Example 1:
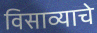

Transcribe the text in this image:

विसाव्याचे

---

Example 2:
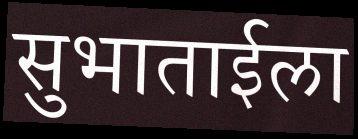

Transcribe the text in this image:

सुभाताईला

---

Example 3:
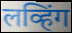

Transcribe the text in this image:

लव्हिंग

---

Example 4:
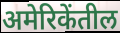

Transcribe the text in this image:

अमेरिकेंतील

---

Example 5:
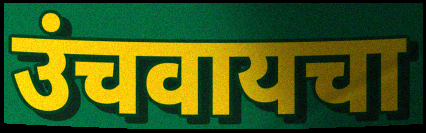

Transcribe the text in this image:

उंचवायचा